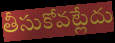
తీసుకోవట్లేదు